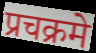
प्रचक्रमे